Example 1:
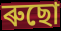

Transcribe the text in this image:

ৰুছো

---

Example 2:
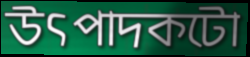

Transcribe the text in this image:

উৎপাদকটো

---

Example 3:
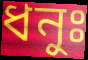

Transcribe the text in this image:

ধনুঃ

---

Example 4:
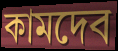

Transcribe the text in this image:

কামদেব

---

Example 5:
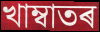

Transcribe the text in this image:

খাম্বাতৰ